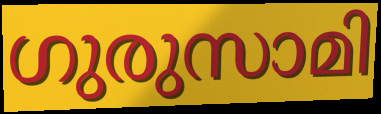
ഗുരുസാമി